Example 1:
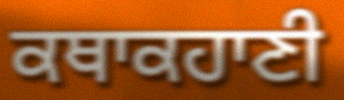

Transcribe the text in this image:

ਕਥਾਕਹਾਣੀ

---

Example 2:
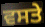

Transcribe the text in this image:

ਵਸਤੇ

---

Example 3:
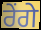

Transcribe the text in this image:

ਰੇਂਗੇ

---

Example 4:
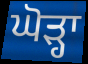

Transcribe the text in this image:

ਘੋੜ੍ਹਾ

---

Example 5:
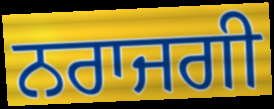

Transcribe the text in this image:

ਨਰਾਜਗੀ